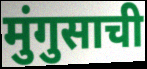
मुंगुसाची